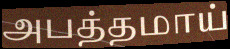
அபத்தமாய்